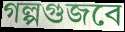
গল্পগুজবে